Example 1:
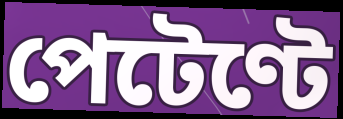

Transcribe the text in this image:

পেটেণ্টে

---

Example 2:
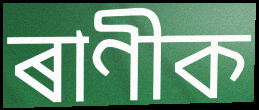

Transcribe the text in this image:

ৰাণীক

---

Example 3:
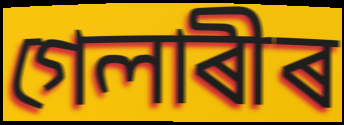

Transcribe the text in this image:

গেলাৰীৰ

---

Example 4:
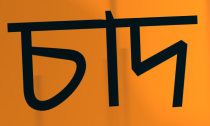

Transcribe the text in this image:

চাদ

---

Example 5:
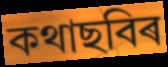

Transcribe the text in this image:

কথাছবিৰ